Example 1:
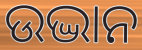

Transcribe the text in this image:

ଉଦ୍ଭାନ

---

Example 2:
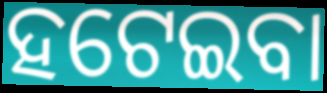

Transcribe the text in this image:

ହଟେଇବା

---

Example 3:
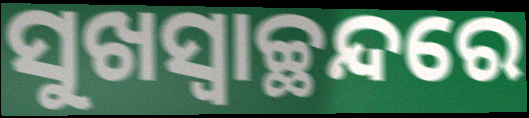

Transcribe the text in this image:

ସୁଖସ୍ୱାଚ୍ଛନ୍ଦରେ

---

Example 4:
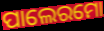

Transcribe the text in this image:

ପାଲେରମୋ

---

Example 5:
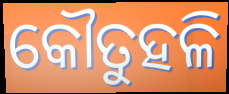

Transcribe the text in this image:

କୌତୁହଳି